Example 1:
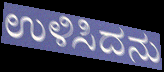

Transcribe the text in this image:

ಉಳಿಸಿದನು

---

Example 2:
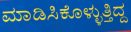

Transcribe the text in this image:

ಮಾಡಿಸಿಕೊಳ್ಳುತ್ತಿದ್ದ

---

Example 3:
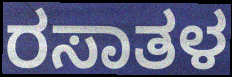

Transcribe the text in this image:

ರಸಾತಳ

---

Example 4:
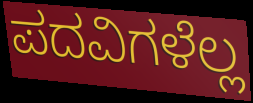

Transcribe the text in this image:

ಪದವಿಗಳೆಲ್ಲ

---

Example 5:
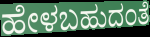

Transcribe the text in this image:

ಹೇಳಬಹುದಂತೆ